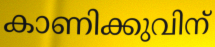
കാണിക്കുവിന്